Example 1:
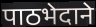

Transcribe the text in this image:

पाठभेदाने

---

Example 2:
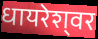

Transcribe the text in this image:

धायरेश्वर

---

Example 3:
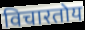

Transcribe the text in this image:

विचारतोय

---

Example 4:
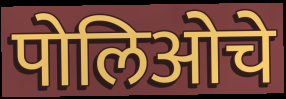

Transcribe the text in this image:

पोलिओचे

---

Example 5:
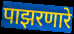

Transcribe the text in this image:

पाझरणारे